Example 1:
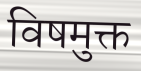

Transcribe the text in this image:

विषमुक्त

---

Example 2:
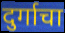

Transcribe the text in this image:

दुर्गाचा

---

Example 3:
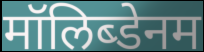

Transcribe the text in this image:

मॉलिब्डेनम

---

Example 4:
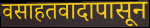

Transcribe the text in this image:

वसाहतवादापासून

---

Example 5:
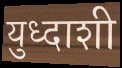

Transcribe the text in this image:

युध्दाशी